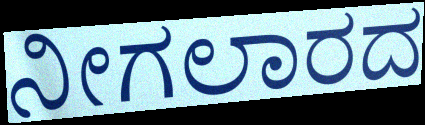
ನೀಗಲಾರದ